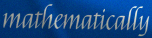
mathematically